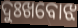
ଦୁଃଖବୋଝ